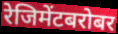
रेजिमेंटबरोबर